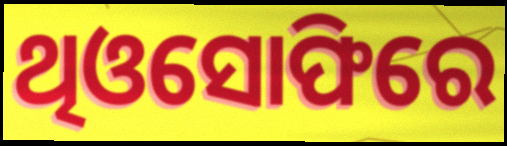
ଥିଓସୋଫିରେ